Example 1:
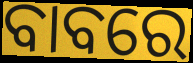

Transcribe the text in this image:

ବାବରେ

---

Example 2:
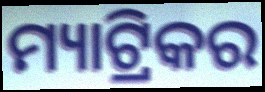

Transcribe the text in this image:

ମ୍ୟାଟ୍ରିକର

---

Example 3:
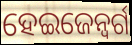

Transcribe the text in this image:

ହେଇଜେନ୍ବର୍ଗ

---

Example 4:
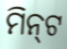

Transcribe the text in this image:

ମିନ୍‌ଟ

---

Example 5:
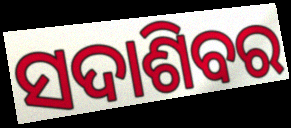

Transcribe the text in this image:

ସଦାଶିବର